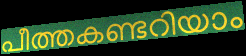
പീത്തകണ്ടറിയാം